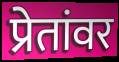
प्रेतांवर